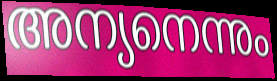
അന്യനെന്നും